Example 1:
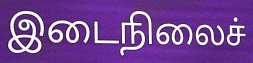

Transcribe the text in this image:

இடைநிலைச்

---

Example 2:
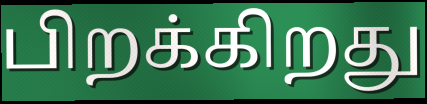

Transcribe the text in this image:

பிறக்கிறது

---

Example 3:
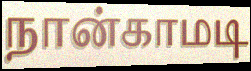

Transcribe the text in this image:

நான்காமடி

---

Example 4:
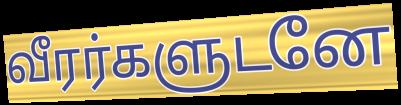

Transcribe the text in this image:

வீரர்களுடனே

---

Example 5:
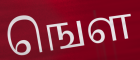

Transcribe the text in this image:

ஙௌ